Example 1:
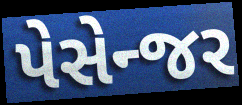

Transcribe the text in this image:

પેસેન્જર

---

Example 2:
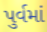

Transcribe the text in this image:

પુર્વમાં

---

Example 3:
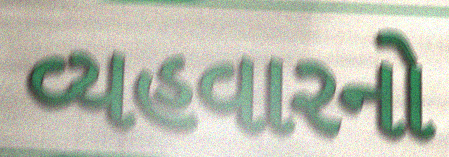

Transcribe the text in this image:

વ્યહવારનો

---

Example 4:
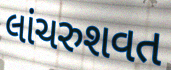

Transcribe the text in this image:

લાંચરુશવત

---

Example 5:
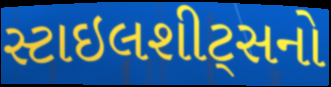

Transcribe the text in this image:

સ્ટાઇલશીટ્સનો